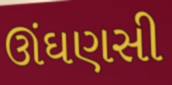
ઊંઘણસી